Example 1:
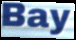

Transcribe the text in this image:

Bay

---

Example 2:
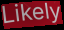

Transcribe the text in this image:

Likely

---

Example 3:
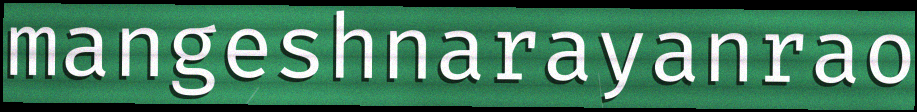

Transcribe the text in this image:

mangeshnarayanrao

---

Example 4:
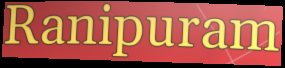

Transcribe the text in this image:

Ranipuram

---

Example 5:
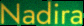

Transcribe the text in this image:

Nadira